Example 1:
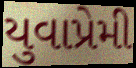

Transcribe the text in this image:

યુવાપ્રેમી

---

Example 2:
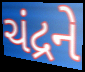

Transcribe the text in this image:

ચંદ્રને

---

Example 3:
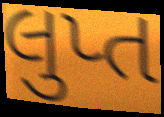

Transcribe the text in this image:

લુપ્ત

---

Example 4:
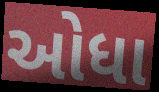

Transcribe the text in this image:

ઓધા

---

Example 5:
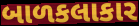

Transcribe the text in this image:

બાળકલાકાર